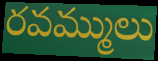
రవమ్ములు